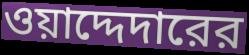
ওয়াদ্দেদারের